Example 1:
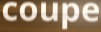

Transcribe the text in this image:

coupe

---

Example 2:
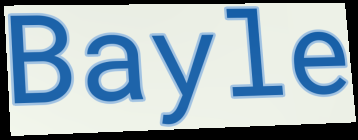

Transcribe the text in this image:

Bayle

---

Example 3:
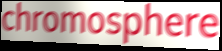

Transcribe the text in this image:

chromosphere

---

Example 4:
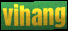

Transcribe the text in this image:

vihang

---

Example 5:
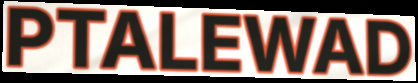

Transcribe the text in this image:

PTALEWAD